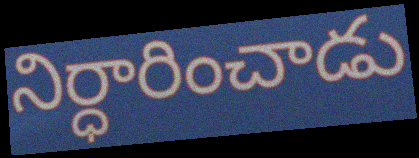
నిర్ధారించాడు